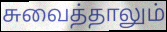
சுவைத்தாலும்